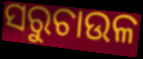
ସରୁଚାଉଳ